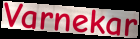
Varnekar